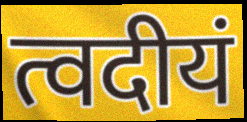
त्वदीयं